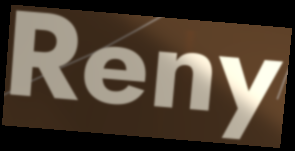
Reny